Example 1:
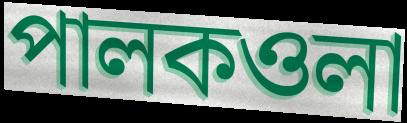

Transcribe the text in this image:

পালকওলা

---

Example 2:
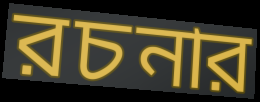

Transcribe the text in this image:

রচনার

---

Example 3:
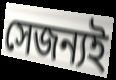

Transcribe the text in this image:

সেজন্যই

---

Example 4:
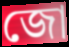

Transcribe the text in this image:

জো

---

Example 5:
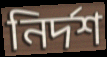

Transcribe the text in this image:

নির্দশ